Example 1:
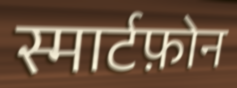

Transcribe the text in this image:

स्‍मार्टफ़ोन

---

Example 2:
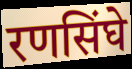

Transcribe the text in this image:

रणसिंघे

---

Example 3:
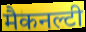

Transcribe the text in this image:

मैकनल्टी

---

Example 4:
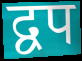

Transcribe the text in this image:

द्वप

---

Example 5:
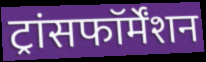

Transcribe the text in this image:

ट्रांसफॉर्मेंशन